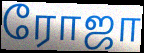
ரோஜா